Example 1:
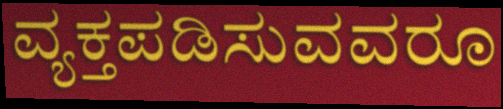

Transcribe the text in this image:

ವ್ಯಕ್ತಪಡಿಸುವವರೂ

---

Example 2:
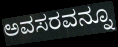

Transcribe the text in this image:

ಅವಸರವನ್ನೂ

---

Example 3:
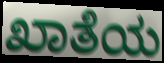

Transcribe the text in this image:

ಖಾತೆಯ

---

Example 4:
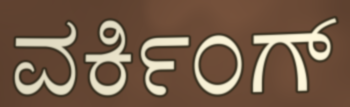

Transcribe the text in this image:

ವರ್ಕಿಂಗ್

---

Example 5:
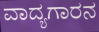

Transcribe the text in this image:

ವಾದ್ಯಗಾರನ